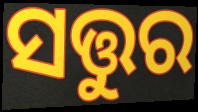
ସତ୍ତୁର